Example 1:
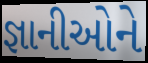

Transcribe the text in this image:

જ્ઞાનીઓને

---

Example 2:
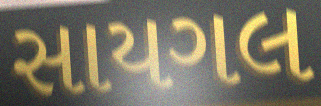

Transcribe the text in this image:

સાયગલ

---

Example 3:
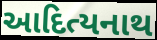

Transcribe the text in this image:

આદિત્યનાથ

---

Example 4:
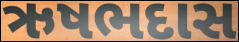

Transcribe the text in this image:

ઋષભદાસ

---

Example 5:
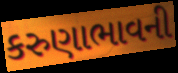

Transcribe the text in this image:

કરુણાભાવની